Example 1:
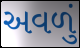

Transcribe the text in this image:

અવળું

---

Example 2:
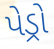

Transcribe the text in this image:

પેડ્રો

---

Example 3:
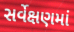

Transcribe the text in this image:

સર્વેક્ષણમાં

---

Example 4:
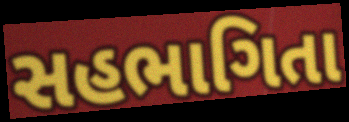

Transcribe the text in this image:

સહભાગિતા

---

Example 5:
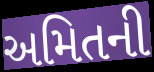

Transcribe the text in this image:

અમિતની